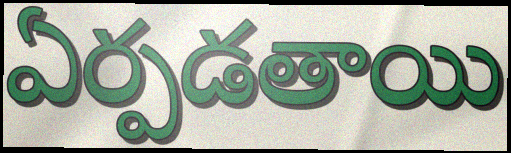
ఏర్పడతాయి